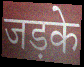
जड़के